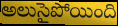
అలుసైపోయింది